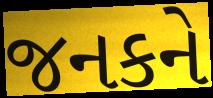
જનકને